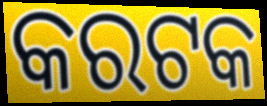
କରଟକ